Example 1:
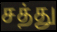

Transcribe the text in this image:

சத்து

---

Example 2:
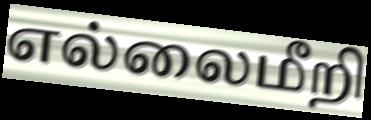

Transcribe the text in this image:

எல்லைமீறி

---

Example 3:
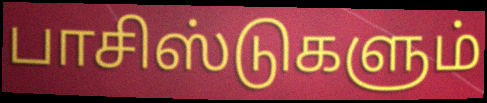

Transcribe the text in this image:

பாசிஸ்டுகளும்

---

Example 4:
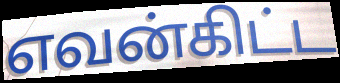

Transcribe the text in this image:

எவன்கிட்ட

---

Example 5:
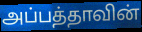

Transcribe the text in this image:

அப்பத்தாவின்